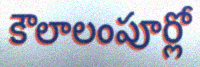
కౌలాలంపూర్లో